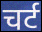
चर्ट